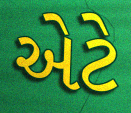
એટે